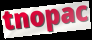
tnopac